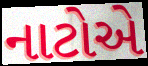
નાટોએ